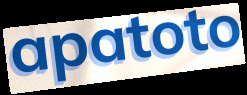
apatoto